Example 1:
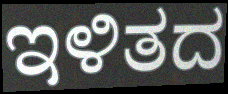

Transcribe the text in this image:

ಇಳಿತದ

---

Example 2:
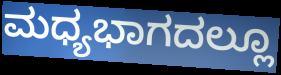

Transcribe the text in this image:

ಮಧ್ಯಭಾಗದಲ್ಲೂ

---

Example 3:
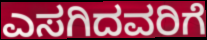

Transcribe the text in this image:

ಎಸಗಿದವರಿಗೆ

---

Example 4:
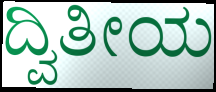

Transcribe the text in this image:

ದ್ವಿತೀಯ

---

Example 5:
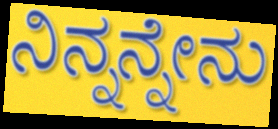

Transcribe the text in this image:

ನಿನ್ನನ್ನೇನು